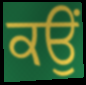
ਕਉਂ